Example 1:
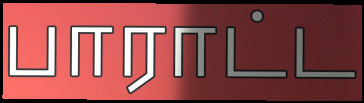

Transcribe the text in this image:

பாராட்ட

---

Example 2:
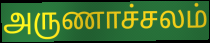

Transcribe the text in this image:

அருணாச்சலம்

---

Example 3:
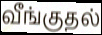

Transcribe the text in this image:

வீங்குதல்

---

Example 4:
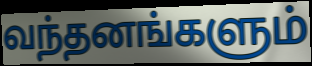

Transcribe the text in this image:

வந்தனங்களும்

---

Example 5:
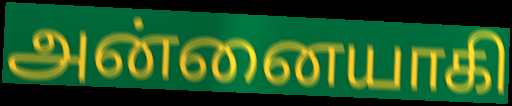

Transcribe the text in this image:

அன்னையாகி